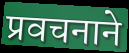
प्रवचनाने